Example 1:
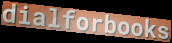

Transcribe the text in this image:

dialforbooks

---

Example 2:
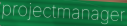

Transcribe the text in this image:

projectmanager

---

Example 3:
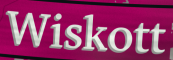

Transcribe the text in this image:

Wiskott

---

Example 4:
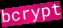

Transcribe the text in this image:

bcrypt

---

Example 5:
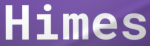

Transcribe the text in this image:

Himes